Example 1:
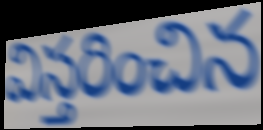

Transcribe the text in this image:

విస్తరించిన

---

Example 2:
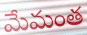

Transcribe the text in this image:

మేమంత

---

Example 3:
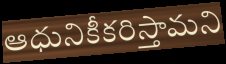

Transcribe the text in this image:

ఆధునికీకరిస్తామని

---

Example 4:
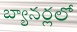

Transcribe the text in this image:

బ్యానర్లలో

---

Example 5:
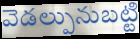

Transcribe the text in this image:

వెడల్పునుబట్టి